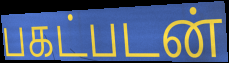
பகட்படன்